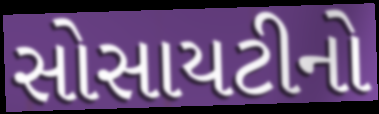
સોસાયટીનો